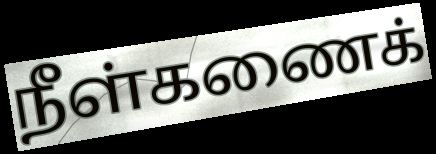
நீள்கணைக்